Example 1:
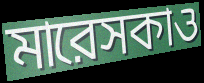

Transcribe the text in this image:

মারেসকাও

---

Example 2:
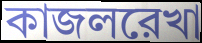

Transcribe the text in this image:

কাজলরেখা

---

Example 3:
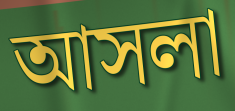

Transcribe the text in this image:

আসলা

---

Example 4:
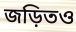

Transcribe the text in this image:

জড়িতও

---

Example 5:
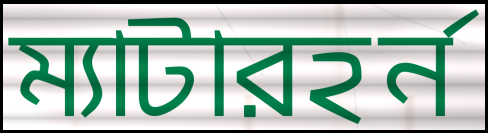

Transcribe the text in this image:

ম্যাটারহর্ন